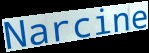
Narcine